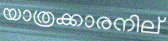
യാത്രക്കാരനില്